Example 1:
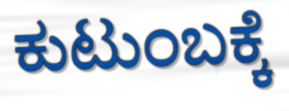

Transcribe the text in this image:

ಕುಟುಂಬಕ್ಕೆ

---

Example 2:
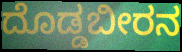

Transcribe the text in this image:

ದೊಡ್ಡಬೀರನ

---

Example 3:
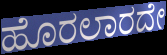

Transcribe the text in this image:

ಹೊರಲಾರದೇ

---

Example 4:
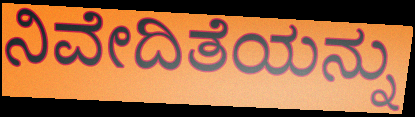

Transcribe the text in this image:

ನಿವೇದಿತೆಯನ್ನು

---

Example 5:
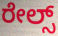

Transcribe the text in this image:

ರೇಲ್ಸ್